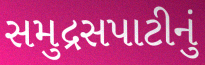
સમુદ્રસપાટીનું